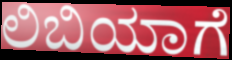
ಲಿಬಿಯಾಗೆ